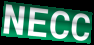
NECC